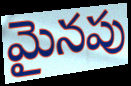
మైనపు